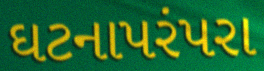
ઘટનાપરંપરા